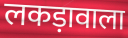
लकड़ावाला